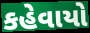
કહેવાયો